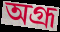
অগ্রূ